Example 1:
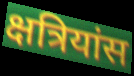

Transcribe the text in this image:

क्षत्रियांस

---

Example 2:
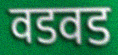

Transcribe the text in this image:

वडवड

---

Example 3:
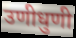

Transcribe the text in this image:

उणीधुणी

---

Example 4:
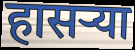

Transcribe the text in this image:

हासऱ्या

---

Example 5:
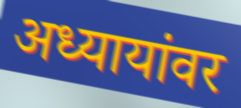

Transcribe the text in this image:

अध्यायांवर